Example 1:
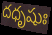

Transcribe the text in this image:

దధృషుః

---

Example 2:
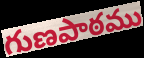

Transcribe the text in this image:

గుణపాఠము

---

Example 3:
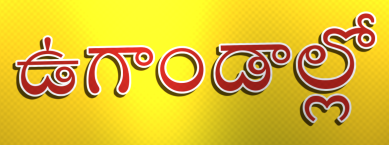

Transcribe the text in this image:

ఉగాండాల్లో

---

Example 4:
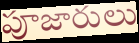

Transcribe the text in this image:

పూజారులు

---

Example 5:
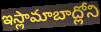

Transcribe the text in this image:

ఇస్లామాబాద్లోని